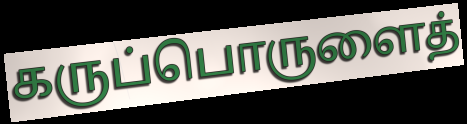
கருப்பொருளைத்